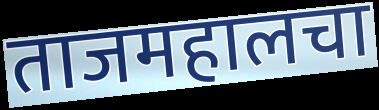
ताजमहालचा